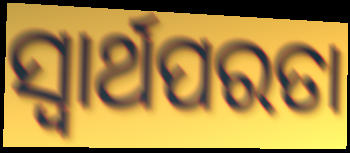
ସ୍ବାର୍ଥପରତା